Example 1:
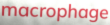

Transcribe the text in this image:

macrophage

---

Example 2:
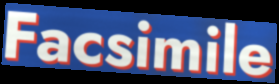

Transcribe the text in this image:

Facsimile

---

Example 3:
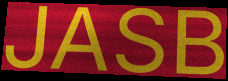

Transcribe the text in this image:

JASB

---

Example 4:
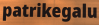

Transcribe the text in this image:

patrikegalu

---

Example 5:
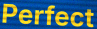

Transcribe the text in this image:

Perfect